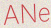
ANe